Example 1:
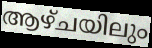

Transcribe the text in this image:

ആഴ്ചയിലും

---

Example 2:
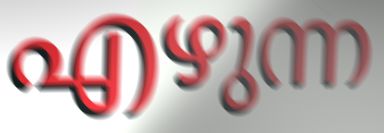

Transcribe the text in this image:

എഴുന്ന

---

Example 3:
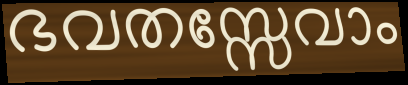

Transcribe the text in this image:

ഭവതസ്സേവാം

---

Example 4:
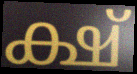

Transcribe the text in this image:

ക്ഷ്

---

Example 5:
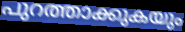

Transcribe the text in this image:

പുറത്താക്കുകയും